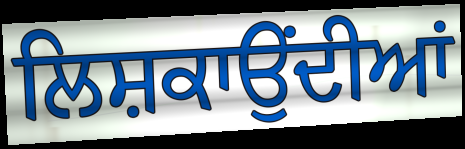
ਲਿਸ਼ਕਾਉਂਦੀਆਂ